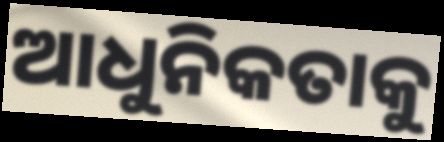
ଆଧୁନିକତାକୁ